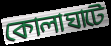
কোলাঘাটে